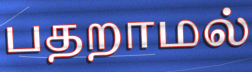
பதறாமல்